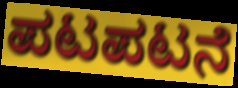
ಪಟಪಟನೆ